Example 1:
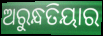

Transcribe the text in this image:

ଅରୁନ୍ଧତିୟାର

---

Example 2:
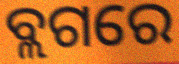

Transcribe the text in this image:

ବ୍ଲଗରେ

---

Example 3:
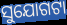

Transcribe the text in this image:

ସୁଯୋଗଟା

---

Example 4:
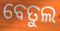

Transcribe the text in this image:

ବେତୁଲ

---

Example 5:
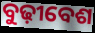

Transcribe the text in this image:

ବୁଢ଼ୀବେଶ